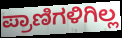
ಪ್ರಾಣಿಗಳಿಗಿಲ್ಲ